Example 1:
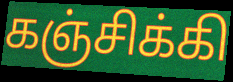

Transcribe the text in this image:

கஞ்சிக்கி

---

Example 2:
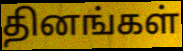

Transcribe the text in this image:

தினங்கள்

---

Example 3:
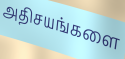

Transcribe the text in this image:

அதிசயங்களை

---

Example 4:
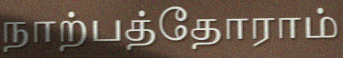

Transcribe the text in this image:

நாற்பத்தோராம்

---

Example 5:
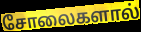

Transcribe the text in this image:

சோலைகளால்